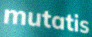
mutatis